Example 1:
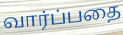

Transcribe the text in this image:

வார்ப்பதை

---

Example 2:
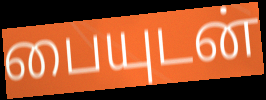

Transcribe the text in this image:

பையுடன்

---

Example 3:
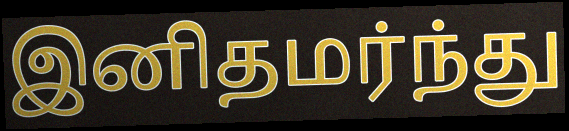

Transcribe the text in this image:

இனிதமர்ந்து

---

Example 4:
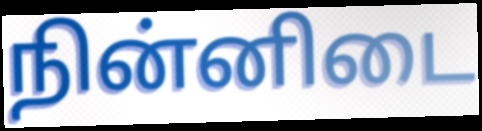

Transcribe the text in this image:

நின்னிடை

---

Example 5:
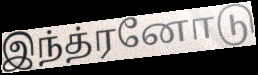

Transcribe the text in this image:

இந்த்ரனோடு